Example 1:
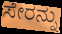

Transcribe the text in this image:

ಸೇರನ್ನು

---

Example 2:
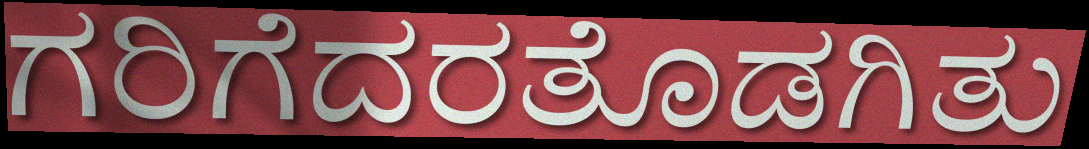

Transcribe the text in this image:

ಗರಿಗೆದರತೊಡಗಿತು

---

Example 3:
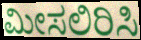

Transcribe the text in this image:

ಮೀಸಲಿರಿಸಿ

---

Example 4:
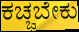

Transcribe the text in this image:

ಕಚ್ಚಬೇಕು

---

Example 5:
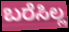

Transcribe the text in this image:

ಬರೆಸಿಲ್ಲ